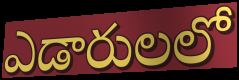
ఎడారులలో